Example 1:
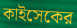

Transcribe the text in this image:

কাইসেকের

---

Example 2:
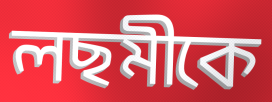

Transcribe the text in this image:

লছমীকে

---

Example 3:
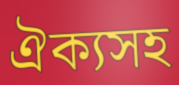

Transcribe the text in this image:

ঐক্যসহ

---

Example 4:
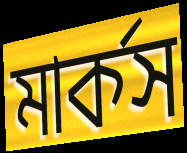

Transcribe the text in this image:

মার্কস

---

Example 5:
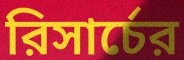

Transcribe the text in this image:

রিসার্চের